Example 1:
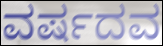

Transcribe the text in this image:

ವರ್ಷದವ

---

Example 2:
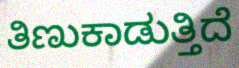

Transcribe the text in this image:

ತಿಣುಕಾಡುತ್ತಿದೆ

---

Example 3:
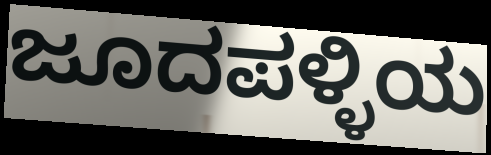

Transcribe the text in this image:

ಜೂದಪಳ್ಳಿಯ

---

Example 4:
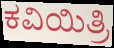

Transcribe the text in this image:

ಕವಿಯಿತ್ರಿ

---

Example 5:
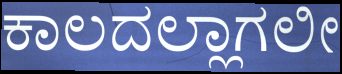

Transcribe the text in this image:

ಕಾಲದಲ್ಲಾಗಲೀ